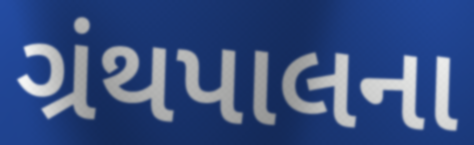
ગ્રંથપાલના